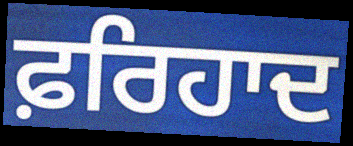
ਫ਼ਰਿਹਾਦ